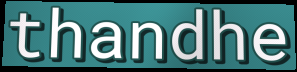
thandhe